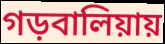
গড়বালিয়ায়